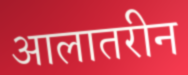
आलातरीन